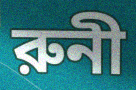
রুনী